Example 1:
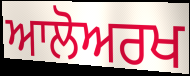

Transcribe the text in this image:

ਆਲੋਅਰਖ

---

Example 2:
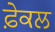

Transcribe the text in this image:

ਫ਼ੇਕਲ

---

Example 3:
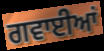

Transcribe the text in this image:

ਗਵਾਈਆਂ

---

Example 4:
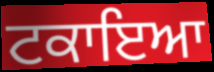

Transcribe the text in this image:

ਟਕਾਇਆ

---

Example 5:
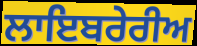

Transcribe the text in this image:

ਲਾਇਬਰੇਰੀਅ